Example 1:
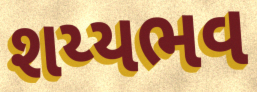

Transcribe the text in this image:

શય્યભવ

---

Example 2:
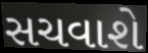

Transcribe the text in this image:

સચવાશે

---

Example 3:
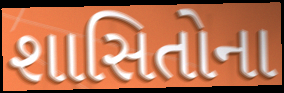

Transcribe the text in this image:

શાસિતોના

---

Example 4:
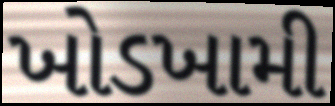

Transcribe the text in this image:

ખોડખામી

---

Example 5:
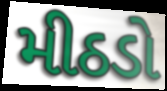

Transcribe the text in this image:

મીઠડો